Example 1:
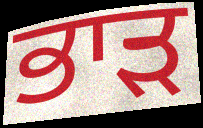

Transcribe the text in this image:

ਭਾੜ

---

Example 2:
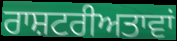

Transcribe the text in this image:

ਰਾਸ਼ਟਰੀਅਤਾਵਾਂ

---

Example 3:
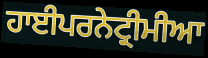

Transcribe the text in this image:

ਹਾਈਪਰਨੇਟ੍ਰੀਮੀਆ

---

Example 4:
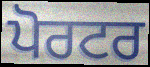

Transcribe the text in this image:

ਪੋਰਟਰ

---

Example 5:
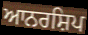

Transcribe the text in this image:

ਆਨਰਸ਼ਿਪ